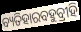
ବ୍ୟତିହାରବହୁବ୍ରୀହି